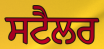
ਸਟੈਲਰ